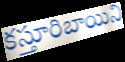
కస్తూరిబాయిని